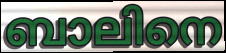
ബാലിനെ